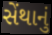
સેંથાનું